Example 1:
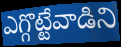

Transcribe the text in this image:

ఎగ్గొట్టేవాడిని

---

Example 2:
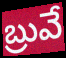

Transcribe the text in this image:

బ్రువే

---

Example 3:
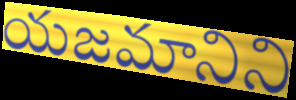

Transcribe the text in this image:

యజమానిని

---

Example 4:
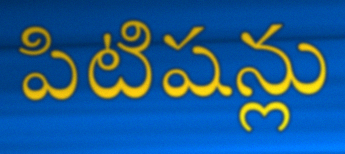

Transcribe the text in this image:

పిటిషన్లు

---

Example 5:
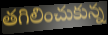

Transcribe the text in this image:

తగిలించుకున్న